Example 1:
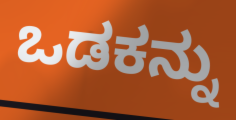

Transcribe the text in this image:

ಒಡಕನ್ನು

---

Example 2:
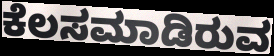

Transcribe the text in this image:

ಕೆಲಸಮಾಡಿರುವ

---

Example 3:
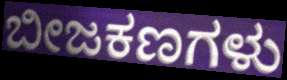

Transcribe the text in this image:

ಬೀಜಕಣಗಳು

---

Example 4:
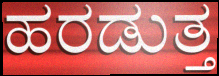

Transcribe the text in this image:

ಹರಡುತ್ತ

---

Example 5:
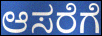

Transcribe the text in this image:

ಆಸರೆಗೆ